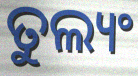
ତୁଲ୍ୟଂ